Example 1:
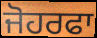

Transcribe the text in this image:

ਜੋਹਰਫਾ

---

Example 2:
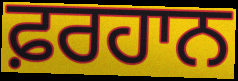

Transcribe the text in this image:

ਫ਼ਰਹਾਨ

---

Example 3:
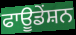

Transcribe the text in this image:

ਫਾਊਡੇਂਸ਼ਨ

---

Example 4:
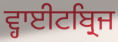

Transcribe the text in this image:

ਵ੍ਹਾਈਟਬ੍ਰਿਜ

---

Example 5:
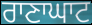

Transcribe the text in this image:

ਰਾਣਾਘਾਟ